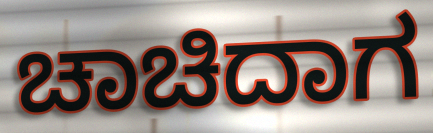
ಚಾಚಿದಾಗ